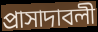
প্রাসাদাবলী